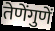
तेणेंगुणें